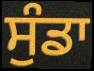
ਸੁੰਡਾ